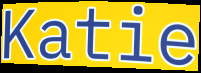
Katie